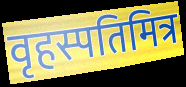
वृहस्पतिमित्र